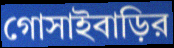
গোসাইবাড়ির